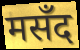
मसँद